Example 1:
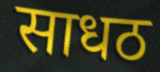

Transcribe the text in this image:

साधठ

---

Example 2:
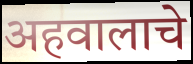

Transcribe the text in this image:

अहवालाचे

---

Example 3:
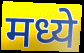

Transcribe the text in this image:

मध्ये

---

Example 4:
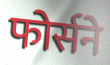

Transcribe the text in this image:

फोर्सने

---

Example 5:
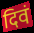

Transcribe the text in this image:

दिवं